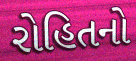
રોહિતનો